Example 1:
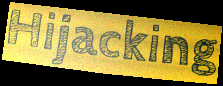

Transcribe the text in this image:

Hijacking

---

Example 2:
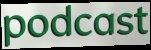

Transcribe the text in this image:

podcast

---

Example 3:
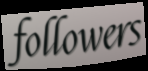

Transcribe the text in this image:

followers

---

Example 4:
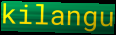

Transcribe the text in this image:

kilangu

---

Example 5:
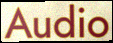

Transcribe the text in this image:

Audio